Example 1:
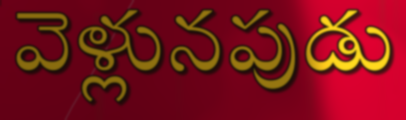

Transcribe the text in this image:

వెళ్లునపుడు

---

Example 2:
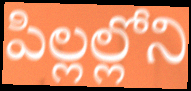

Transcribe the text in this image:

పిల్లల్లోని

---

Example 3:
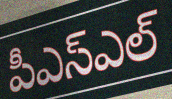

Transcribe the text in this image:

పీఎస్ఎల్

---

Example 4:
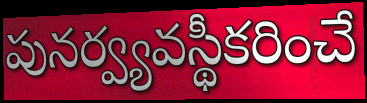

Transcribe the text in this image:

పునర్వ్యవస్థీకరించే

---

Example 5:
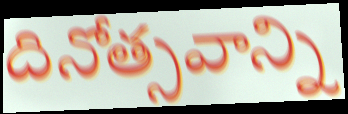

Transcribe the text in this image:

దినోత్సవాన్ని